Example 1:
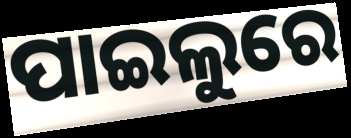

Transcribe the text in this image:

ପାଇଲୁରେ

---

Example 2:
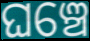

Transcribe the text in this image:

ଘଞ୍ଚେ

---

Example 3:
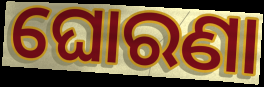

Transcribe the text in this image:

ଘୋରଣା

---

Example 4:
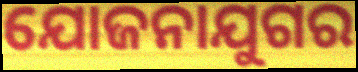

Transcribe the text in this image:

ଯୋଜନାଯୁଗର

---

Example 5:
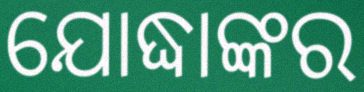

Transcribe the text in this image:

ଯୋଦ୍ଧାଙ୍କର